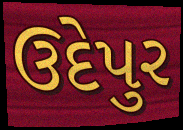
ઉદેપુર